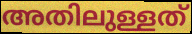
അതിലുള്ളത്